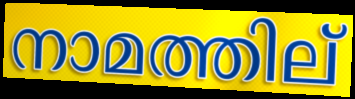
നാമത്തില്